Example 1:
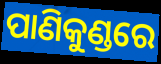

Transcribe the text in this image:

ପାଣିକୁଣ୍ଡରେ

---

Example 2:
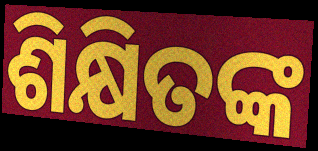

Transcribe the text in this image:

ଶିକ୍ଷିତଙ୍କ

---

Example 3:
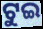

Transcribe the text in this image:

ଟୁଇ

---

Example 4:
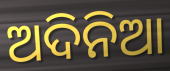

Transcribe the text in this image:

ଅଦିନିଆ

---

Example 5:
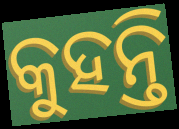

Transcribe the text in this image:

କୁହନ୍ତି